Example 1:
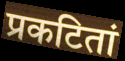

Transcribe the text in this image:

प्रकटितां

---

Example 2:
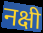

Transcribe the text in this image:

नक्षी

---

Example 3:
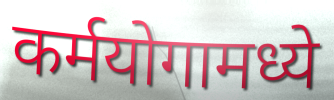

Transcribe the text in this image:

कर्मयोगामध्ये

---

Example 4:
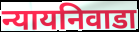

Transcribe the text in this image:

न्यायनिवाडा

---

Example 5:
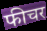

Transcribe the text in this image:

फीचर